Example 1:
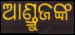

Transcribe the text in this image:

ଆଣ୍ଡ୍ରୁଜଙ୍କ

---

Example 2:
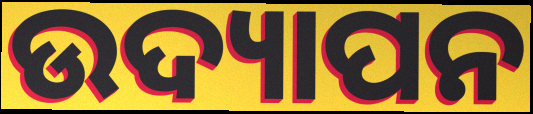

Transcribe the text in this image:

ଉଦ୍ୟାପନ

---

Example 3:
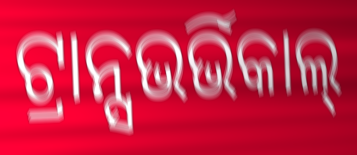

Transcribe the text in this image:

ଟ୍ରାନ୍ସଭର୍ଭିକାଲ୍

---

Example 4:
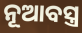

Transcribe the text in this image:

ନୂଆବସ୍ତ୍ର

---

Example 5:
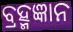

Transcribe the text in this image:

ବ୍ରହ୍ମଜ୍ଞାନ